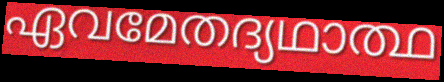
ഏവമേതദ്യഥാത്ഥ